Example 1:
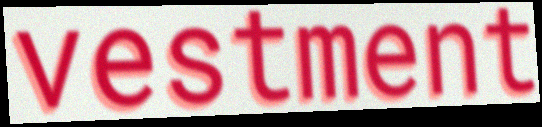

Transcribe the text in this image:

vestment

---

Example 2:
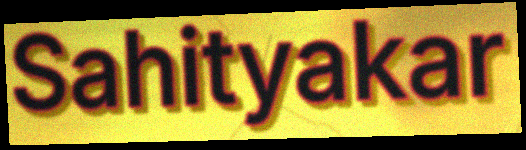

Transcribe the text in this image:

Sahityakar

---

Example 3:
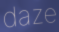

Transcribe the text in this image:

daze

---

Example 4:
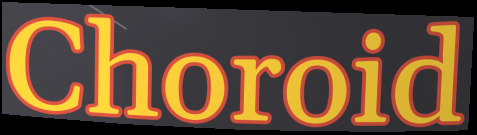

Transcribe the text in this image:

Choroid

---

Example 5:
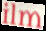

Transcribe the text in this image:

ilm